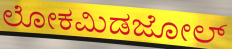
ಲೋಕಮಿಡಜೋಲ್